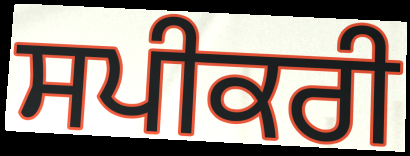
ਸਪੀਕਰੀ